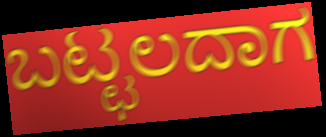
ಬಟ್ಟಲದಾಗ